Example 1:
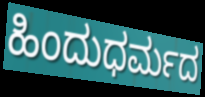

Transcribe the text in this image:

ಹಿಂದುಧರ್ಮದ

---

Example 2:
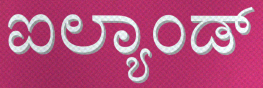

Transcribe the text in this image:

ಐಲ್ಯಾಂಡ್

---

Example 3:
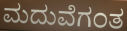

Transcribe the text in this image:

ಮದುವೆಗಂತ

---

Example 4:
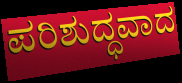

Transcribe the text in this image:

ಪರಿಶುದ್ಧವಾದ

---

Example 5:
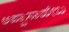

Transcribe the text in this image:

ಅಪ್ಪಾಸಾಹೇಬ